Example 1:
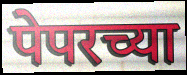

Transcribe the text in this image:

पेपरच्या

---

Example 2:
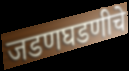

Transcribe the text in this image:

जडणघडणीचे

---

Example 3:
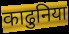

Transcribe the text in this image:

काढुनिया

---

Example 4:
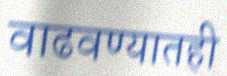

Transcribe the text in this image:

वाढवण्यातही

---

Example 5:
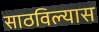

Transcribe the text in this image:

साठविल्यास